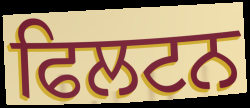
ਫਿਲਟਨ